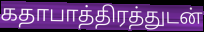
கதாபாத்திரத்துடன்